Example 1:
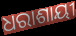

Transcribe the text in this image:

ଧରାଶାୟୀ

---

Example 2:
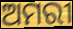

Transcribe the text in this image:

ଅମରୀ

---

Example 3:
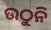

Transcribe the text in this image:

ଉଠୁନି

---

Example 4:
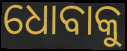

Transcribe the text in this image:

ଧୋବାକୁ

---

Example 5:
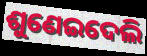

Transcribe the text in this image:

ଶୁଣେଇଦେଲି